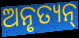
ଅନୃତ୍ୟନ୍